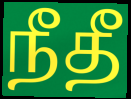
நீதீ